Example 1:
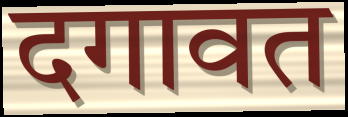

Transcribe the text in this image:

दगावत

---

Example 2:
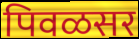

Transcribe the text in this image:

पिवळसर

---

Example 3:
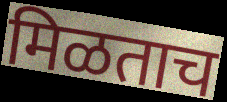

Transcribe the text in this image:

मिळताच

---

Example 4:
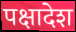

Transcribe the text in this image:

पक्षादेश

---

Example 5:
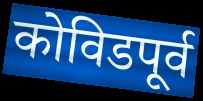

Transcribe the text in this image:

कोविडपूर्व